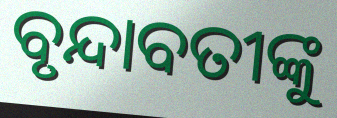
ବୃନ୍ଦାବତୀଙ୍କୁ